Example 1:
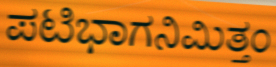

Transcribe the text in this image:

ಪಟಿಭಾಗನಿಮಿತ್ತಂ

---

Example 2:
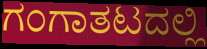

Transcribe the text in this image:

ಗಂಗಾತಟದಲ್ಲಿ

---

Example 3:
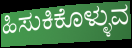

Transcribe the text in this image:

ಹಿಸುಕಿಕೊಳ್ಳುವ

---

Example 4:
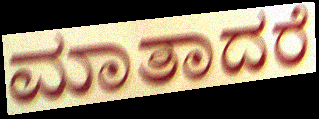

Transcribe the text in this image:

ಮಾತಾದರೆ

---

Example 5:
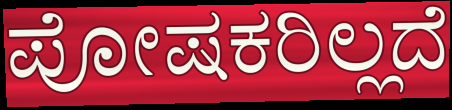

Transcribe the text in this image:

ಪೋಷಕರಿಲ್ಲದೆ